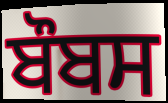
ਬੌਬਸ